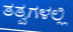
ತತ್ವಗಳಲ್ಲಿ